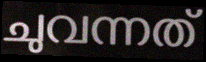
ചുവന്നത്